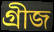
গ্ৰীজ